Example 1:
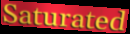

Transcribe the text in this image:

Saturated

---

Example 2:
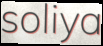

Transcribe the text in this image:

soliya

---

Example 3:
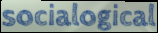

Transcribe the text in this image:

socialogical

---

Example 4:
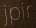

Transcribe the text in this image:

jpir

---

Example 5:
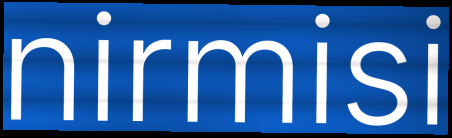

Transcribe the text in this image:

nirmisi